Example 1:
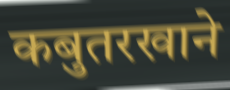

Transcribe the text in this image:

कबुतरखाने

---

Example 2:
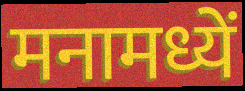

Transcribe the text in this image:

मनामध्यें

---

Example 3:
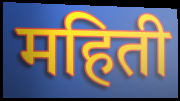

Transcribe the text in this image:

महिती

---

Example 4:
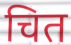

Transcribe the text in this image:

चित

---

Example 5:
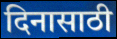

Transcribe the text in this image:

दिनासाठी